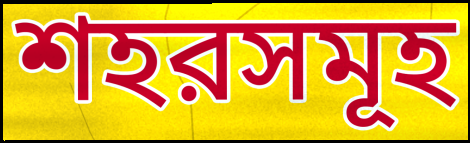
শহরসমূহ